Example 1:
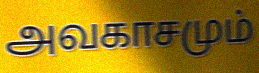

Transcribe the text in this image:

அவகாசமும்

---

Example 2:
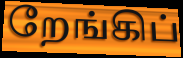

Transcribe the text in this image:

றேங்கிப்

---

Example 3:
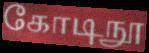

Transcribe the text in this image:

கோடிநூ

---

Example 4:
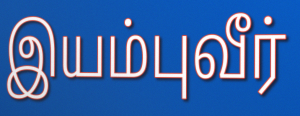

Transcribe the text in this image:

இயம்புவீர்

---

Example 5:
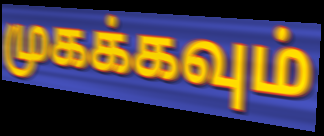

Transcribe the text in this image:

முகக்கவும்